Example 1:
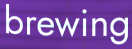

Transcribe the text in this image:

brewing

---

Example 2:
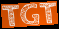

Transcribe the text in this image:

TGT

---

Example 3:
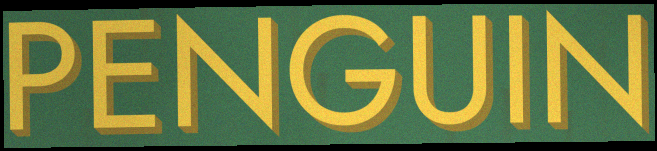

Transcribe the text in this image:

PENGUIN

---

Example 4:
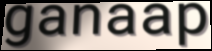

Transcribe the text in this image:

ganaap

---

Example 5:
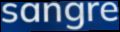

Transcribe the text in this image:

sangre